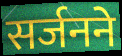
सर्जनने